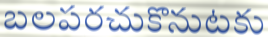
బలపరచుకొనుటకు